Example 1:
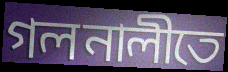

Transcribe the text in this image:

গলনালীতে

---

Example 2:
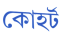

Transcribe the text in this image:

কোহর্ট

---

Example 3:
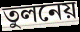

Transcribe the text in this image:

তুলনেয়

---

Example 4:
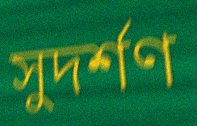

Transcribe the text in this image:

সুদর্শণ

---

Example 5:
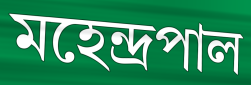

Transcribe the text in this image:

মহেন্দ্রপাল